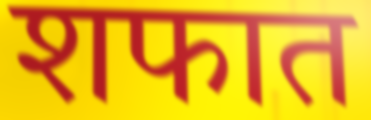
शफात